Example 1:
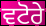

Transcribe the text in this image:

ਵਟੋਰੇ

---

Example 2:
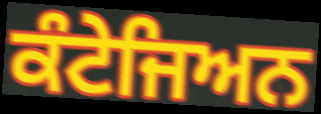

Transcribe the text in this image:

ਕੰਟੇਜਿਅਨ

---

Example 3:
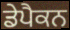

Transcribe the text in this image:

ਡੇਪੈਕਨ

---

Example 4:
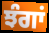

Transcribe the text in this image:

ਝੰਗਾਂ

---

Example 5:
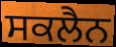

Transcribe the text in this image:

ਸਕਲੈਨ